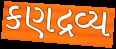
કણદ્રવ્ય